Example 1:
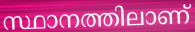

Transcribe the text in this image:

സ്ഥാനത്തിലാണ്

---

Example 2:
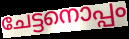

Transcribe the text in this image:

ചേട്ടനൊപ്പം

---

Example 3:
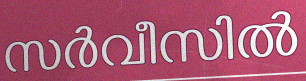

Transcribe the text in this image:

സർവീസിൽ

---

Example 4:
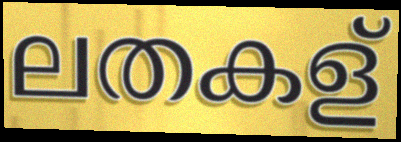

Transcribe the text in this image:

ലതകള്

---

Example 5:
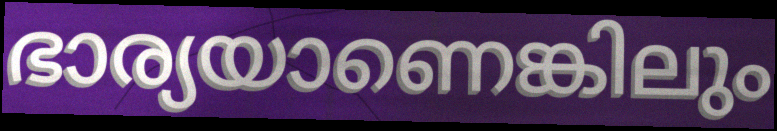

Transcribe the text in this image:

ഭാര്യയാണെങ്കിലും